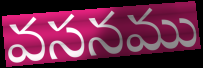
వసనము